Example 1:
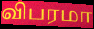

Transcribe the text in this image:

விபரமா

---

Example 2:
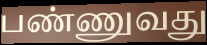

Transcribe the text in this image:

பண்ணுவது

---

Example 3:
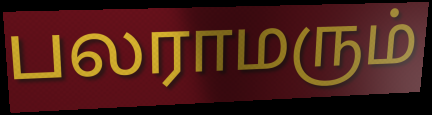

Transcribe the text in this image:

பலராமரும்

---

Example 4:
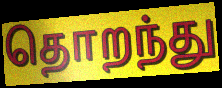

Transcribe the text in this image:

தொறந்து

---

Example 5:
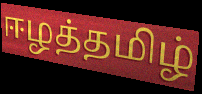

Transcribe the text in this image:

ஈழத்தமிழ்